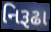
નિરૂઢા